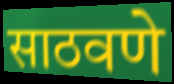
साठवणे